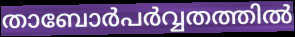
താബോർപർവ്വതത്തിൽ